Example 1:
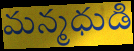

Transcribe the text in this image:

మన్మధుడి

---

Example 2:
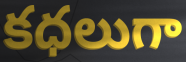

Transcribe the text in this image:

కధలుగా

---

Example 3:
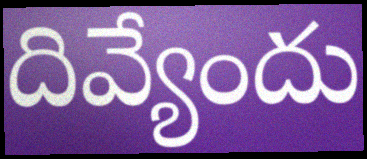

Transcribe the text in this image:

దివ్యేందు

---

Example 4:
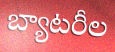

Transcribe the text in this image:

బ్యాటరీల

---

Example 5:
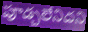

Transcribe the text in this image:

పూడ్చలేనిదని